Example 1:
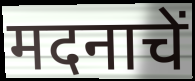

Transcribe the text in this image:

मदनाचें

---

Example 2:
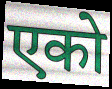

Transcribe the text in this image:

एको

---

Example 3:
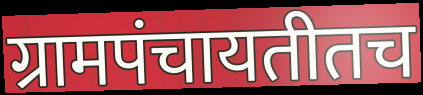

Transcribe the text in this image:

ग्रामपंचायतीतच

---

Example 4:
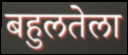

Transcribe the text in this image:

बहुलतेला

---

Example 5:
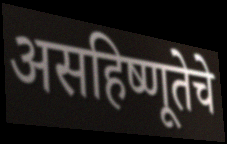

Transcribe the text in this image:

असहिष्णूतेचे